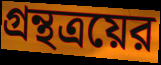
গ্রন্থত্রয়ের